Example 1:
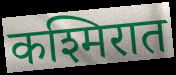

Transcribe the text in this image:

कश्मिरात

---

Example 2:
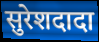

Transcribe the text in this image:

सुरेशदादा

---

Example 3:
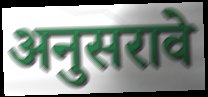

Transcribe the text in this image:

अनुसरावे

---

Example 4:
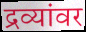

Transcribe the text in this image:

द्रव्यांवर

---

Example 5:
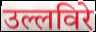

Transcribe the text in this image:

उल्लविरे